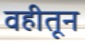
वहीतून